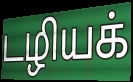
டழியக்